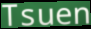
Tsuen